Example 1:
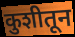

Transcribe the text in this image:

कुशीतून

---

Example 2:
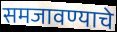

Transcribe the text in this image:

समजावण्याचे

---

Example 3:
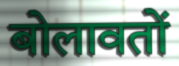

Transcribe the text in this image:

बोलावतों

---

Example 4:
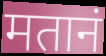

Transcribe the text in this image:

मतानं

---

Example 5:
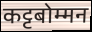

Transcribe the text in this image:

कट्टबोम्मन